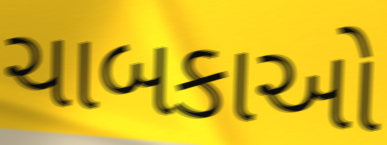
ચાબકાઓ